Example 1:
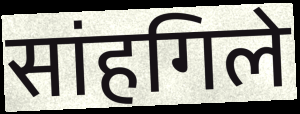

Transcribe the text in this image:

सांहगिले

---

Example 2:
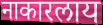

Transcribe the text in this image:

नाकारलाय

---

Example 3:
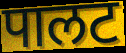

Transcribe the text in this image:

पालट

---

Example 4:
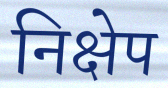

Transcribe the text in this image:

निक्षेप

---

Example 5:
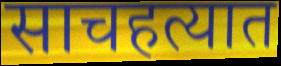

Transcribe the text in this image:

साचहत्यात